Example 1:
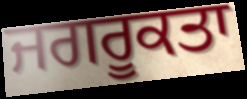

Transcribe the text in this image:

ਜਗਰੂਕਤਾ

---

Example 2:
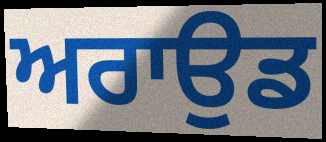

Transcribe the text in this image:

ਅਰਾਉਡ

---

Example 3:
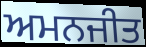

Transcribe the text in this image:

ਅਮਨਜੀਤ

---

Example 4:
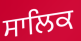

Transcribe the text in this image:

ਸਾਲਿਕ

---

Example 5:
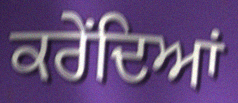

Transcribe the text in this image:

ਕਰੇਂਦਿਆਂ